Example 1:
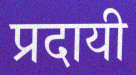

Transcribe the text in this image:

प्रदायी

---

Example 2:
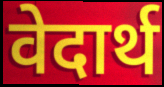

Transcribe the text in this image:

वेदार्थ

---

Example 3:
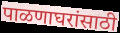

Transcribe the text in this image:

पाळणाघरांसाठी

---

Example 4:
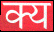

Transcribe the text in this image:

क्य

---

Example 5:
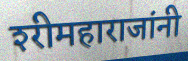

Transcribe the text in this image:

श्रीमहाराजांनी